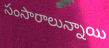
సంసారాలున్నాయి